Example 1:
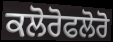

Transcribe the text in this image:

ਕਲੋਰੋਫਲੋਰੋ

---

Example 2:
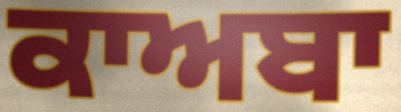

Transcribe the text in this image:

ਕਾਅਬਾ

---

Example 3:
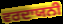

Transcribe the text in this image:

ਵਰਦਾਯਨੀ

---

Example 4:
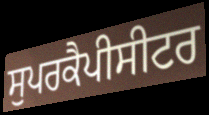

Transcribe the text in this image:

ਸੁਪਰਕੈਪੀਸੀਟਰ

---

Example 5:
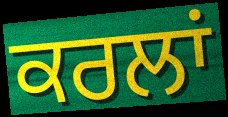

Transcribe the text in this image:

ਕਰਲਾਂ